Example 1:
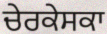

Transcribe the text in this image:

ਚੇਰਕੇਸਕਾ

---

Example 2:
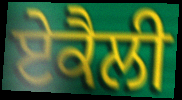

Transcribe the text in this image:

ਏਕੈਲੀ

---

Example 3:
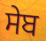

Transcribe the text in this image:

ਸੇਬ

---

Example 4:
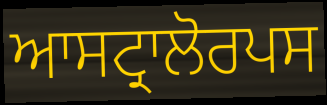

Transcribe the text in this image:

ਆਸਟ੍ਰਾਲੋਰਪਸ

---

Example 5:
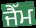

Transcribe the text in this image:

ਜੈੱਮ